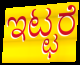
ಇಟ್ಟರೆ